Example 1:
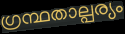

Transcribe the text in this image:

ഗ്രന്ഥതാല്പര്യം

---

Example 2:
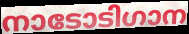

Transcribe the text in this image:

നാടോടിഗാന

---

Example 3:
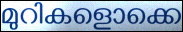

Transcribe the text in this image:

മുറികളൊക്കെ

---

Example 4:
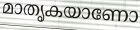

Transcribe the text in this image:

മാതൃകയാണോ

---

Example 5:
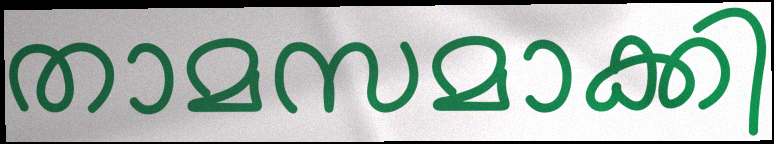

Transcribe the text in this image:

താമസമാക്കി